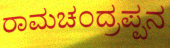
ರಾಮಚಂದ್ರಪ್ಪನ